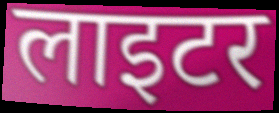
लाइटर